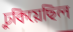
ঢুকিয়েছিল